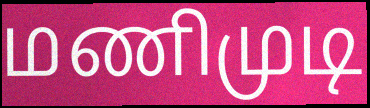
மணிமுடி